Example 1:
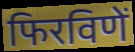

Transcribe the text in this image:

फिरविणें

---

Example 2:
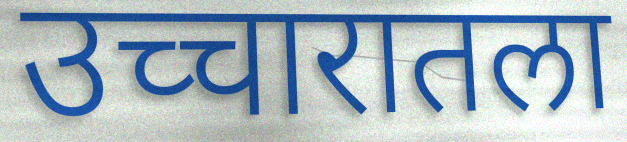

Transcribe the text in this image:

उच्चारातला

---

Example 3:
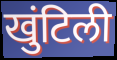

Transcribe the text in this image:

खुंटिली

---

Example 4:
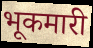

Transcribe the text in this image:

भूकमारी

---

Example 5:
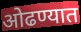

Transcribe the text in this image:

ओढण्यात